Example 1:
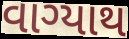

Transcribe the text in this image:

વાગ્યાથ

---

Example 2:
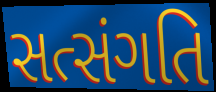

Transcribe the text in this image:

સત્સંગતિ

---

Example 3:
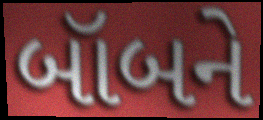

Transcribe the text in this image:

બૉબને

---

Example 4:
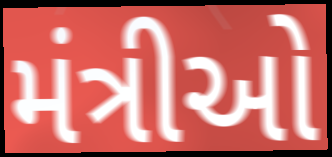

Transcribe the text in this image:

મંત્રીઓ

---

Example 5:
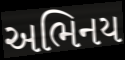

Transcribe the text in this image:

અભિનય